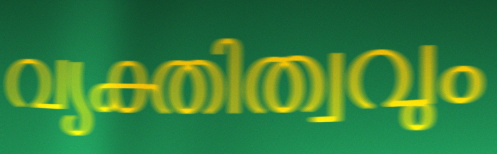
വ്യക്തിത്വവും